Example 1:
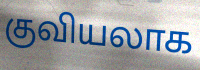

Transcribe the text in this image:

குவியலாக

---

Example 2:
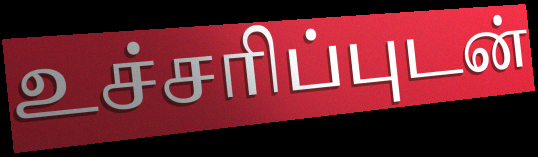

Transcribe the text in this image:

உச்சரிப்புடன்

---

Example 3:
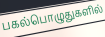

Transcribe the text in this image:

பகல்பொழுதுகளில்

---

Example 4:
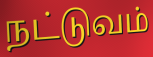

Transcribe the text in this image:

நட்டுவம்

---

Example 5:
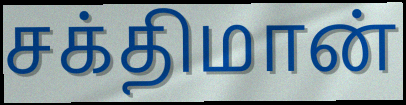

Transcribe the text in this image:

சக்திமான்